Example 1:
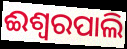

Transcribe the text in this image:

ଈଶ୍ୱରପାଲି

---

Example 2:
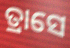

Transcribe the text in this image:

ତ୍ରାସେ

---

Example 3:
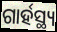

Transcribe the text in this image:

ଗାର୍ହସ୍ଥ୍ୟ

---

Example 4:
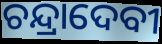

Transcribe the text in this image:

ଚନ୍ଦ୍ରାଦେବୀ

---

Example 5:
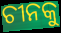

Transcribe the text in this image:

ଚୀନକୁ